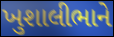
ખુશાલીભાને